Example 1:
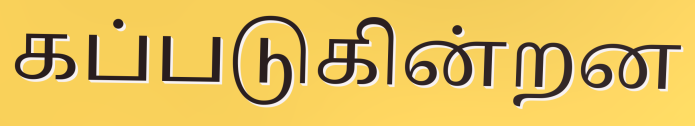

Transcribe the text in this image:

கப்படுகின்றன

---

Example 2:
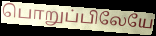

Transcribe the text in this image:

பொறுப்பிலேயே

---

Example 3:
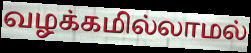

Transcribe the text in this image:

வழக்கமில்லாமல்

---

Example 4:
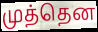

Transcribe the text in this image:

முத்தென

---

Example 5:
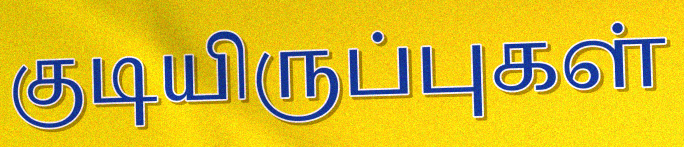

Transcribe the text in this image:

குடியிருப்புகள்